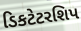
ડિકટેટરશિપ